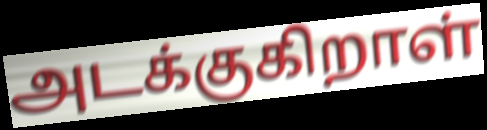
அடக்குகிறாள்